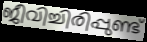
ജീവിച്ചിരിപ്പുണ്ട്